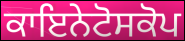
ਕਾਇਨੇਟੋਸਕੋਪ